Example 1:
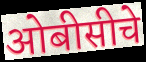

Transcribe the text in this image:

ओबीसीचे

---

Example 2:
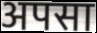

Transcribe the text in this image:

अपसा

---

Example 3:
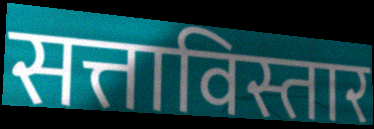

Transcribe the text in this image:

सत्ताविस्तार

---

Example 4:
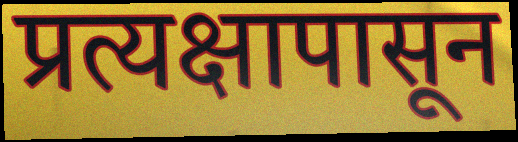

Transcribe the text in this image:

प्रत्यक्षापासून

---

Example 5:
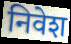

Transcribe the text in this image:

निवेश